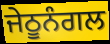
ਜੇਠੂਨੰਗਲ